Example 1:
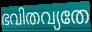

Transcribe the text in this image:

ഭവിതവ്യതേ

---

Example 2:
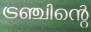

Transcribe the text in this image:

ട്രഞ്ചിന്റെ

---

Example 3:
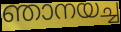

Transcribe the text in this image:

ഞാനയച്ച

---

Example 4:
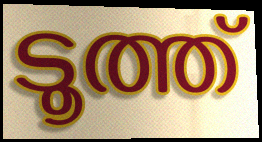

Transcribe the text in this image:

ടൂത്ത്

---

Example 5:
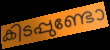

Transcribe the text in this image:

കിടപ്പുണ്ടോ